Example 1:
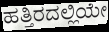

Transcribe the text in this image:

ಹತ್ತಿರದಲ್ಲಿಯೇ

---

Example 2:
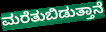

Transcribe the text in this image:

ಮರೆತುಬಿಡುತ್ತಾನೆ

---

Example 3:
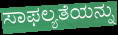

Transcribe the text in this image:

ಸಾಫಲ್ಯತೆಯನ್ನು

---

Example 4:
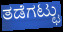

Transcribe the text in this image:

ತಡೆಗಟ್ಟು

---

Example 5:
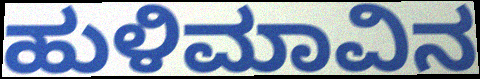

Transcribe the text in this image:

ಹುಳಿಮಾವಿನ